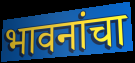
भावनांचा